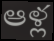
ఆళ్ల